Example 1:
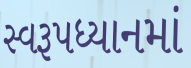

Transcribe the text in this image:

સ્વરૂપધ્યાનમાં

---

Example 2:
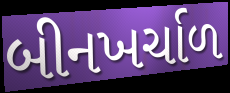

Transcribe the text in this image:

બીનખર્ચાળ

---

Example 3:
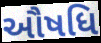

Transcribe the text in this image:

ઔષધિ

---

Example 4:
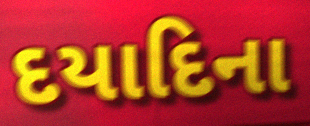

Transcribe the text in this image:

દયાદિના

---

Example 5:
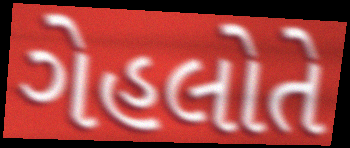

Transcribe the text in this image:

ગેહલોતે